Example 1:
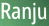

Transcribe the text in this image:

Ranju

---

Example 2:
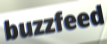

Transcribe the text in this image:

buzzfeed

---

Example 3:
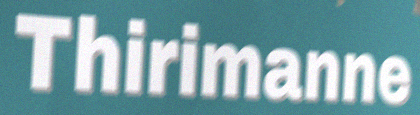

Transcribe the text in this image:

Thirimanne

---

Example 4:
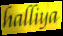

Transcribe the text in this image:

halliya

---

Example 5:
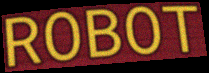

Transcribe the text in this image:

ROBOT